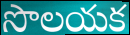
సొలయక